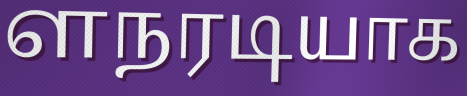
ளநரடியாக